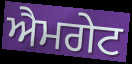
ਐਮਗੇਟ